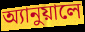
অ্যানুয়ালে